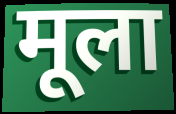
मूला